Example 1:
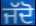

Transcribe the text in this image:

ਜੱਦੋ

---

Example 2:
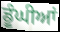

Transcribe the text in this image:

ਡੂੰਘੀਆਂ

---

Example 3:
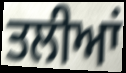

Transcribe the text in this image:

ਤਲੀਆਂ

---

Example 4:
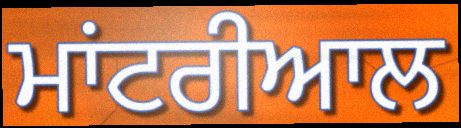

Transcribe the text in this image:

ਮਾਂਟਰੀਆਲ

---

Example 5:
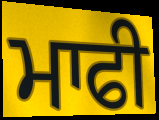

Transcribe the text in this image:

ਮਾਫੀ